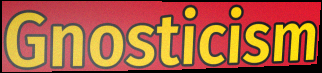
Gnosticism